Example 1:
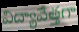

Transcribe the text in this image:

విద్యావేత్తగా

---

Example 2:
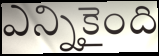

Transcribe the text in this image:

ఎన్నికైంది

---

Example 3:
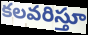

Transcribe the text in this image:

కలవరిస్తూ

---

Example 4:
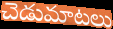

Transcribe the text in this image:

చెడుమాటలు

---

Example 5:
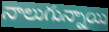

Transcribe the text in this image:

నాలుగున్నాయి